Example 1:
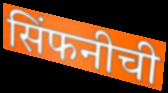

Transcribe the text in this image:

सिंफनीची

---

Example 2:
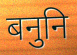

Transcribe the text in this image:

बनुनि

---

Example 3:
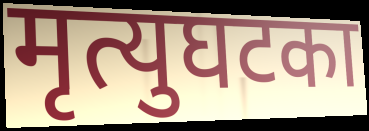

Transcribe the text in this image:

मृत्युघटका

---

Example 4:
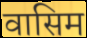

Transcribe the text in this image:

वासिम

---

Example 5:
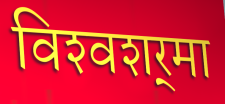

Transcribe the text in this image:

विश्वशर्मा